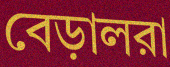
বেড়ালরা